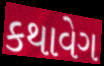
કથાવેગ